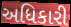
અધિકારી